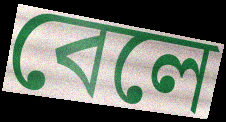
বেলে